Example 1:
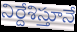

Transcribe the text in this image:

నిర్దేశిస్తూనే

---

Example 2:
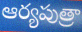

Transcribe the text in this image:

ఆర్యపుత్రా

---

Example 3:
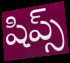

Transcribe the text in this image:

షిప్స్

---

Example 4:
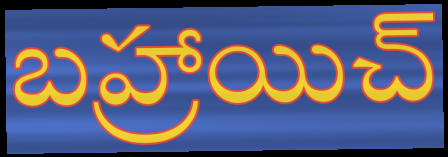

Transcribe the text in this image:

బహ్రాయిచ్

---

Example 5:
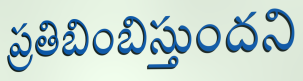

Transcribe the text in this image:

ప్రతిబింబిస్తుందని